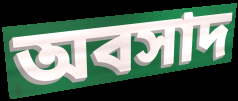
অবসাদ